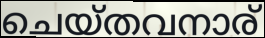
ചെയ്തവനാര്